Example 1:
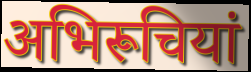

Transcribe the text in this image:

अभिरूचियां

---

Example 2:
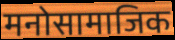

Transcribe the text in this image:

मनोसामाजिक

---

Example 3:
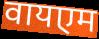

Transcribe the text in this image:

वायएम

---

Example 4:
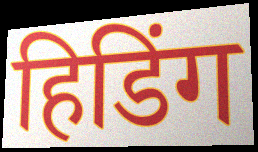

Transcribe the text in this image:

हिडिंग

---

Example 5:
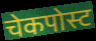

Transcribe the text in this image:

चेकपोस्ट